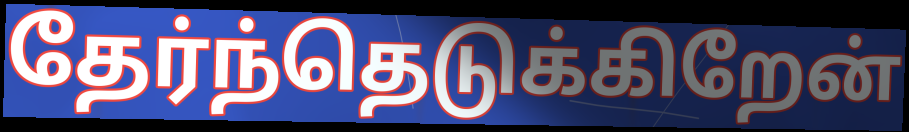
தேர்ந்தெடுக்கிறேன்